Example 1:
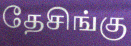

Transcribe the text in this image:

தேசிங்கு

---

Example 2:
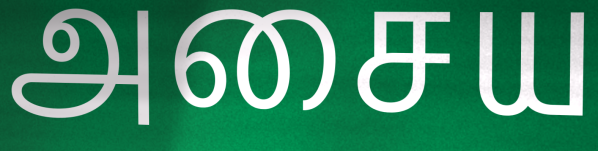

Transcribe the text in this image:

அசைய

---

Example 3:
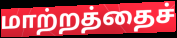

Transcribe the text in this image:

மாற்றத்தைச்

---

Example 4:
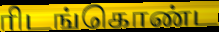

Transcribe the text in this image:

ரிடங்கொண்ட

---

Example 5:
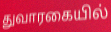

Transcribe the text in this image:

துவாரகையில்